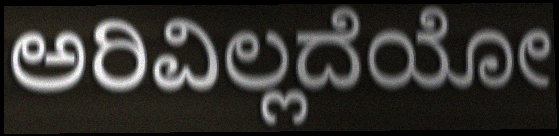
ಅರಿವಿಲ್ಲದೆಯೋ